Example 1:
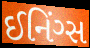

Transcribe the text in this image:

ઈનિંગ્સ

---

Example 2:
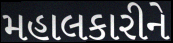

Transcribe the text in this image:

મહાલકારીને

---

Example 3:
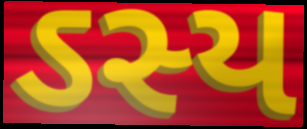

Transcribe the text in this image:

ઽસ્ય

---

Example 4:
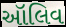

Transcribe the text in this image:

ઑલિવ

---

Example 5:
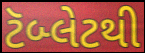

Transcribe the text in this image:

ટૅબ્લેટથી